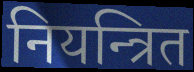
नियन्त्रित